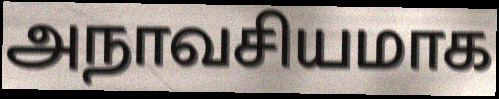
அநாவசியமாக